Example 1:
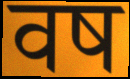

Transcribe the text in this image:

वष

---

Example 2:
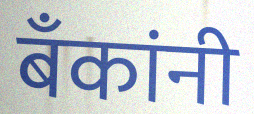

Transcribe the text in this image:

बॅंकांनी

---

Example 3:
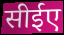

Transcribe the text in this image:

सीईए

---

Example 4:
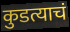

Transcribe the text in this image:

कुडत्याचं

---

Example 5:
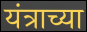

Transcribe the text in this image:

यंत्राच्या